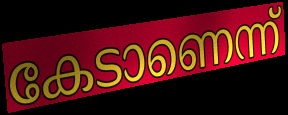
കേടാണെന്ന്